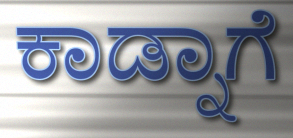
ಕಾಡ್ನಾಗೆ